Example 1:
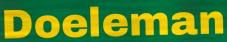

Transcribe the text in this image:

Doeleman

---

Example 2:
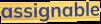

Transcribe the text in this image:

assignable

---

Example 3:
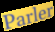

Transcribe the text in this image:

Parler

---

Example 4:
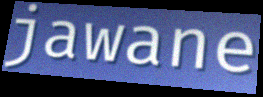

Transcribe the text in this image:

jawane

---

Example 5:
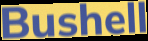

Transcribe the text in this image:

Bushell